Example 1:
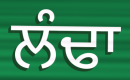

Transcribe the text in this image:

ਲੰਢਾ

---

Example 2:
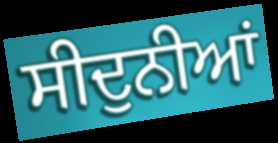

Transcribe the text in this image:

ਸੀਦੁਨੀਆਂ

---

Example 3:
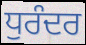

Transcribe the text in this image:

ਧੁਰੰਦਰ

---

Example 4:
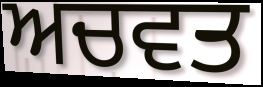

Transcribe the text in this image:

ਅਚਵਤ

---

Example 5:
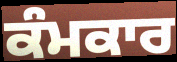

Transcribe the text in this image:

ਕੰਮਕਾਰ